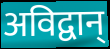
अविद्वान्